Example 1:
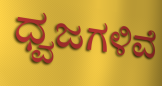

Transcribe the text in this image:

ಧ್ವಜಗಳಿವೆ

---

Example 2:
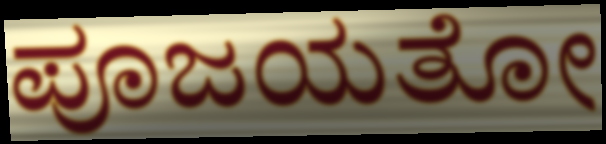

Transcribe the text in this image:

ಪೂಜಯತೋ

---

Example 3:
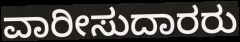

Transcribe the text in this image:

ವಾರೀಸುದಾರರು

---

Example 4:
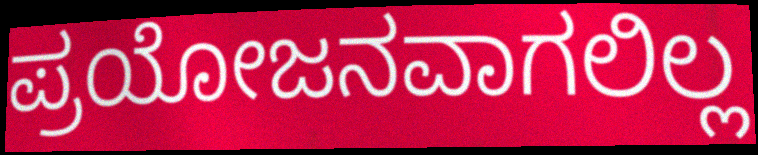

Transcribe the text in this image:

ಪ್ರಯೋಜನವಾಗಲಿಲ್ಲ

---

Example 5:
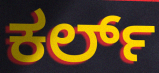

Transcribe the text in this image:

ಕರ್ಲ್